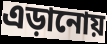
এড়ানোয়